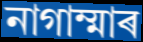
নাগাম্মাৰ